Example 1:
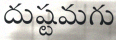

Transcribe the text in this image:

దుష్టమగు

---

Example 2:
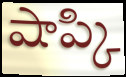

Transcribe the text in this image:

షాప్కి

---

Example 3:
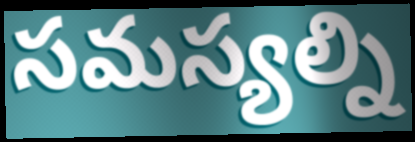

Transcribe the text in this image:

సమస్యల్ని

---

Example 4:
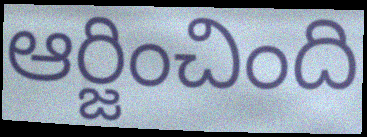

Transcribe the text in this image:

ఆర్జించింది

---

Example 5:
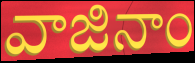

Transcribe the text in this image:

వాజినాం